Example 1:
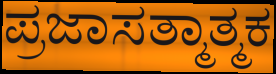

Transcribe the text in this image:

ಪ್ರಜಾಸತ್ಮಾತ್ಮಕ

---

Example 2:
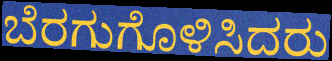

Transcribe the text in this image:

ಬೆರಗುಗೊಳಿಸಿದರು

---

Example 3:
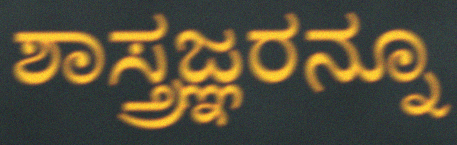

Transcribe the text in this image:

ಶಾಸ್ತ್ರಜ್ಞರನ್ನೂ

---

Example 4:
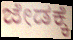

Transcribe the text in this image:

ಜೇಡಕ್ಕೆ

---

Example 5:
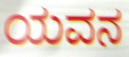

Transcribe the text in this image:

ಯವನ